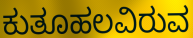
ಕುತೂಹಲವಿರುವ